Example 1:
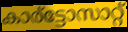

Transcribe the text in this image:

കാര്ട്ടോസാറ്റ്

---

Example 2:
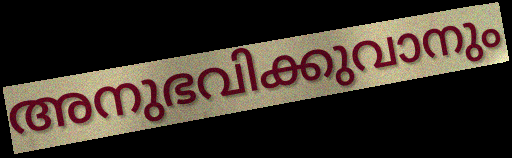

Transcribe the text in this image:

അനുഭവിക്കുവാനും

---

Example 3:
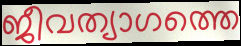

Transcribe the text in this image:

ജീവത്യാഗത്തെ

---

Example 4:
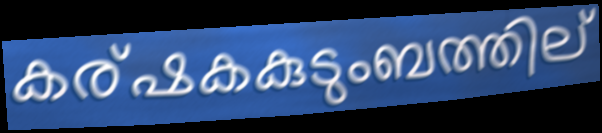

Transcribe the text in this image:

കര്ഷകകുടുംബത്തില്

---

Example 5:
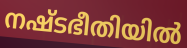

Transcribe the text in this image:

നഷ്ടഭീതിയിൽ